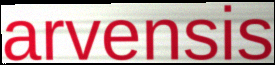
arvensis